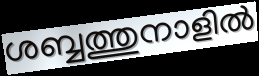
ശബ്ബത്തുനാളിൽ